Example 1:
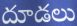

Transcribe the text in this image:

దూడలు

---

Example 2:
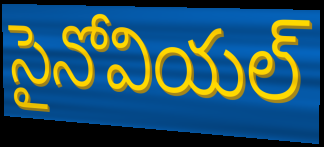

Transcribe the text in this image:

సైనోవియల్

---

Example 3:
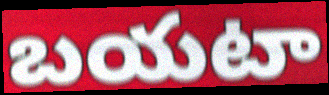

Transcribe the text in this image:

బయటా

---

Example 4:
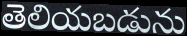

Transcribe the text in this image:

తెలియబడును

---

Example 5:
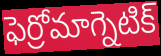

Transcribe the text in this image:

ఫెర్రోమాగ్నెటిక్